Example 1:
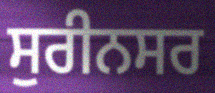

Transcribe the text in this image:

ਸੁਰੀਨਸਰ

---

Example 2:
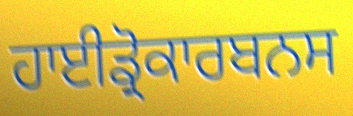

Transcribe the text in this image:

ਹਾਈਡ੍ਰੋਕਾਰਬਨਸ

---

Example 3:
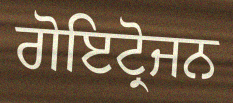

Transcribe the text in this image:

ਗੋਇਟ੍ਰੋਜਨ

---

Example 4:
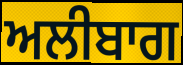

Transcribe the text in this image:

ਅਲੀਬਾਗ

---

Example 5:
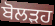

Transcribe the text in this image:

ਬੋਲੜਹ